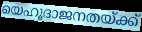
യെഹൂദാജനതയ്ക്ക്